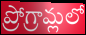
ప్రోగ్రామ్లలో